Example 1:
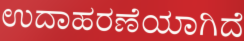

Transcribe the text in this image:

ಉದಾಹರಣೆಯಾಗಿದೆ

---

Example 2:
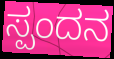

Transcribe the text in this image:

ಸ್ಪಂದನ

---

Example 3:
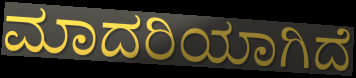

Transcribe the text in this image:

ಮಾದರಿಯಾಗಿದೆ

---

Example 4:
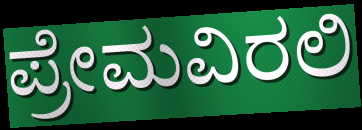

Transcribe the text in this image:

ಪ್ರೇಮವಿರಲಿ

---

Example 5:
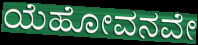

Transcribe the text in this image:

ಯೆಹೋವನವೇ